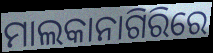
ମାଲକାନାଗିରିରେ